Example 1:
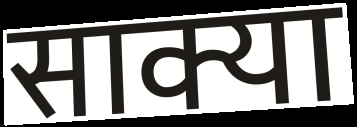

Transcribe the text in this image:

साक्या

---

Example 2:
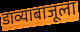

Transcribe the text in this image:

डाव्याबाजूला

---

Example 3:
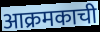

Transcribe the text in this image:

आक्रमकाची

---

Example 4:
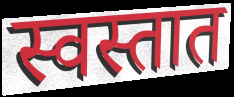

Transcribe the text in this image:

स्वस्तात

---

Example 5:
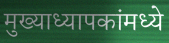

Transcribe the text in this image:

मुख्याध्यापकांमध्ये